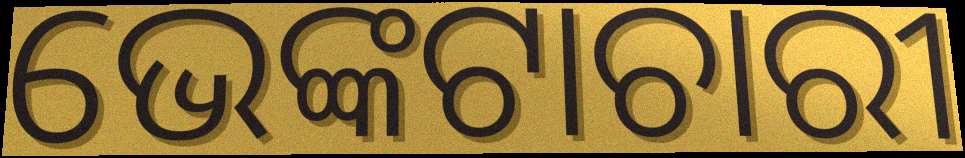
ଭେଙ୍କଟାଚାରୀ